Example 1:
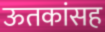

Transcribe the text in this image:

ऊतकांसह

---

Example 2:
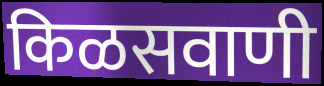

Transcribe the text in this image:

किळसवाणी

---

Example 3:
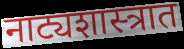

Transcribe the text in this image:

नाट्यशास्त्रात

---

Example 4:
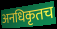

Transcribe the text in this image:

अनधिकृतच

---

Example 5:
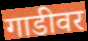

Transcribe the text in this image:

गाडीवर